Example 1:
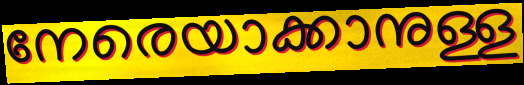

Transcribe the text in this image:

നേരെയാക്കാനുള്ള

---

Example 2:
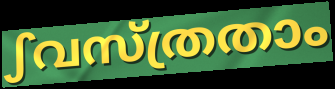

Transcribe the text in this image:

ഽവസ്ത്രതാം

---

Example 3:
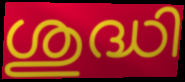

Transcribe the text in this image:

ശുദ്ധി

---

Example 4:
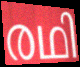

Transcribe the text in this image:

രഥി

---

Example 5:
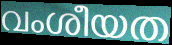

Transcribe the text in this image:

വംശീയത